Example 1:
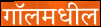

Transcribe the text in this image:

गॉलमधील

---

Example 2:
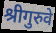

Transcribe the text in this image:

श्रीगुरुवे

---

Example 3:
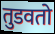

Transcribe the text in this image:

तुडवतो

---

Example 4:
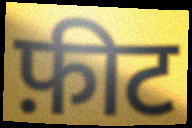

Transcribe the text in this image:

फ़ीट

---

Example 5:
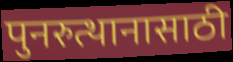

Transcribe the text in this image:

पुनरुत्थानासाठी